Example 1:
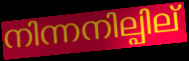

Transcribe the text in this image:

നിന്നനില്പില്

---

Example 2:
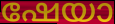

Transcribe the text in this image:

ഷേയാ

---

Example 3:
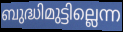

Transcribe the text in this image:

ബുദ്ധിമുട്ടില്ലെന്ന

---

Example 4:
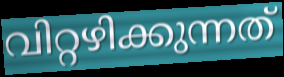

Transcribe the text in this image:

വിറ്റഴിക്കുന്നത്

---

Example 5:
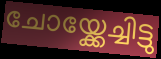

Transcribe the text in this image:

ചോയ്ക്കേച്ചിട്ടു